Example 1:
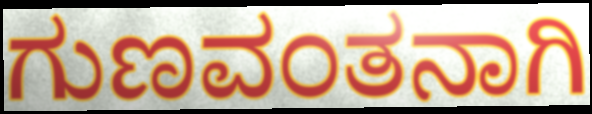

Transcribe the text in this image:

ಗುಣವಂತನಾಗಿ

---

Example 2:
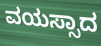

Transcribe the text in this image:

ವಯಸ್ಸಾದ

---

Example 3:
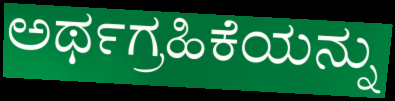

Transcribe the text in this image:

ಅರ್ಥಗ್ರಹಿಕೆಯನ್ನು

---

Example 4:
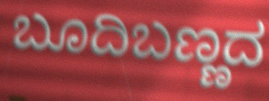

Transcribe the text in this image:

ಬೂದಿಬಣ್ಣದ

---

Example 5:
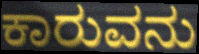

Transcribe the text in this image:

ಕಾರುವನು